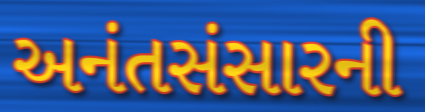
અનંતસંસારની